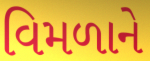
વિમળાને